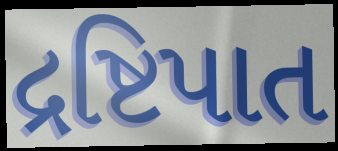
દ્રષ્ટિપાત